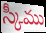
స్కీము